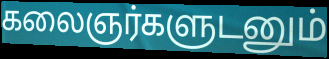
கலைஞர்களுடனும்